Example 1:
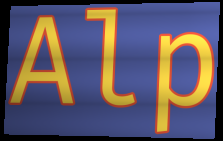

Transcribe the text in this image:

Alp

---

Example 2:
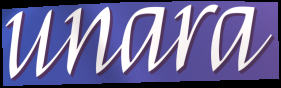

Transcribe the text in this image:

unara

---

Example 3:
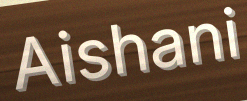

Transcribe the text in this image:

Aishani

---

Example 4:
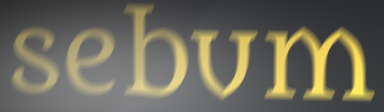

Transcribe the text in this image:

sebum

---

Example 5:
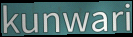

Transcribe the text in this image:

kunwari